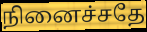
நினைச்சதே